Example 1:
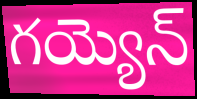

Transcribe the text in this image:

గయ్యెన్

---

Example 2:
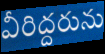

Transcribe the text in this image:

వీరిద్దరును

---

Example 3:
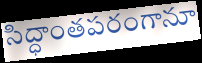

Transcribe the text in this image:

సిద్ధాంతపరంగానూ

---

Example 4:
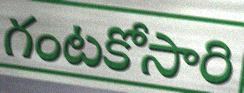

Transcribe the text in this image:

గంటకోసారి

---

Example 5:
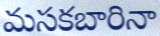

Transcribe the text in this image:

మసకబారినా